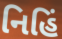
નિહિં